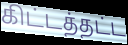
கிட்டத்தட்ட